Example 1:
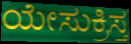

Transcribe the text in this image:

ಯೇಸುಕ್ರಿಸ್ತ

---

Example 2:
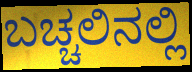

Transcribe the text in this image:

ಬಚ್ಚಲಿನಲ್ಲಿ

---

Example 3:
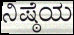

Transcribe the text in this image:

ನಿಷ್ಠೆಯ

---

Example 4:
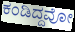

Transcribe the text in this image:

ಕಂಡಿದ್ದವೋ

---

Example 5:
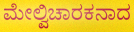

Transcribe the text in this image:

ಮೇಲ್ವಿಚಾರಕನಾದ